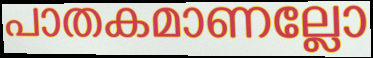
പാതകമാണല്ലോ